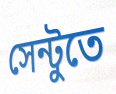
সেন্টুতে